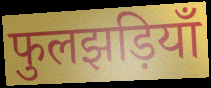
फुलझड़ियाँ